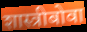
शास्त्रीबोवा